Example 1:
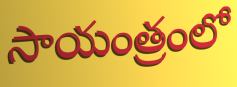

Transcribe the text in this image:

సాయంత్రంలో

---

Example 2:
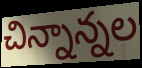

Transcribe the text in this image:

చిన్నాన్నల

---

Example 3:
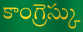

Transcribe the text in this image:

కాంగ్రెస్కు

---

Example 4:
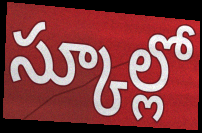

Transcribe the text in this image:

స్కూల్లో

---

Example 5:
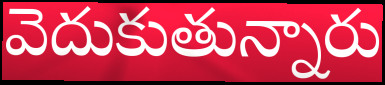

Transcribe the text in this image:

వెదుకుతున్నారు